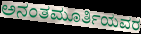
ಅನಂತಮೂರ್ತಿಯವರ